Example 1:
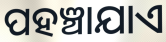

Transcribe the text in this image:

ପହଞ୍ଚାଯାଏ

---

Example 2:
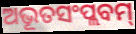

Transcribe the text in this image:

ଅଭୂତସଂପ୍ଲବମ୍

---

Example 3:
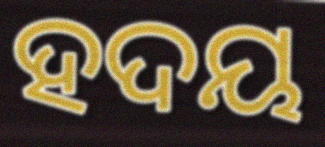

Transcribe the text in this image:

ହଦୟ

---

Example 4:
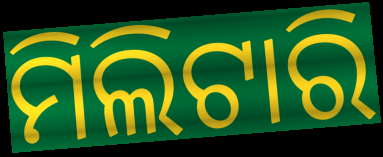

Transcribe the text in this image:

ମିଲିଟାରି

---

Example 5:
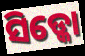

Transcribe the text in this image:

ସିଡ୍କୋ